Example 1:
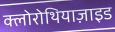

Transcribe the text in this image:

क्लोरोथियाज़ाइड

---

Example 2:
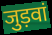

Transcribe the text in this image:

जुड़वां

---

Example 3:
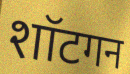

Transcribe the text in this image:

शॉटगन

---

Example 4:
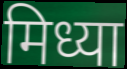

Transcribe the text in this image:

मिध्या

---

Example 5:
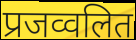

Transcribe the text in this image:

प्रजव्वलित